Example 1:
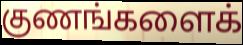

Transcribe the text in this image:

குணங்களைக்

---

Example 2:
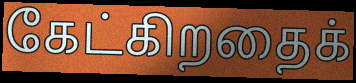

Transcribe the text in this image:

கேட்கிறதைக்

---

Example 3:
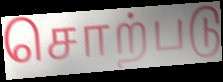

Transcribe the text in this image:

சொற்படு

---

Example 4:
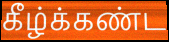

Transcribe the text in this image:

கீழ்க்கண்ட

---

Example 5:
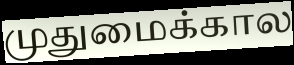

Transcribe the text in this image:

முதுமைக்கால